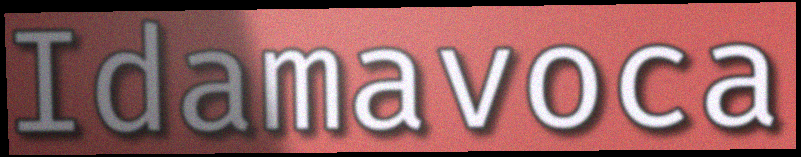
Idamavoca